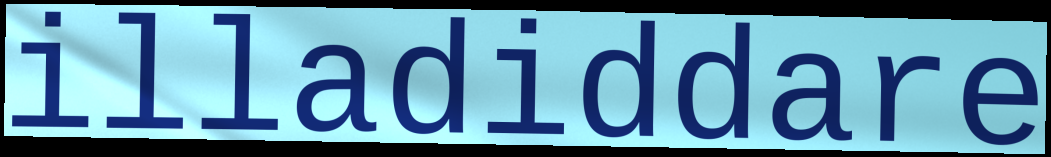
illadiddare